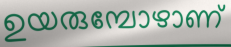
ഉയരുമ്പോഴാണ്